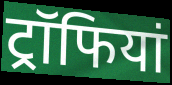
ट्रॉफियां